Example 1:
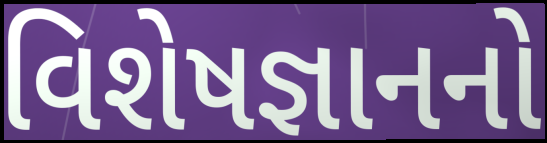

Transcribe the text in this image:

વિશેષજ્ઞાનનો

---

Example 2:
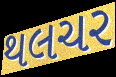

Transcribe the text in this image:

થલચર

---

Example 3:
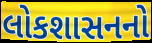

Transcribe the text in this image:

લોકશાસનનો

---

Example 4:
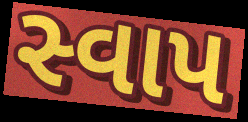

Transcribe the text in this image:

સ્વાપ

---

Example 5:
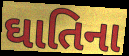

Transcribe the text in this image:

ઘાતિના